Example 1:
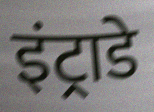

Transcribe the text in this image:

इंट्राडे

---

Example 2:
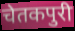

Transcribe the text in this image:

चेतकपुरी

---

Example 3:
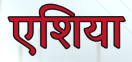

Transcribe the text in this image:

एशिया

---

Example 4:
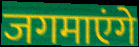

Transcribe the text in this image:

जगमाएंगे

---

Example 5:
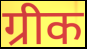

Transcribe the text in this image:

ग्रीक